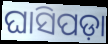
ଘାସିପଡ଼ା